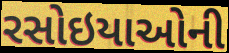
રસોઇયાઓની